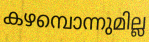
കഴമ്പൊന്നുമില്ല